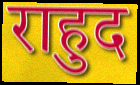
राहुद